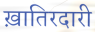
ख़ातिरदारी